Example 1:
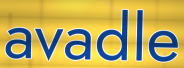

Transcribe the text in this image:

avadle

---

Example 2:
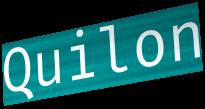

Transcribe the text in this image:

Quilon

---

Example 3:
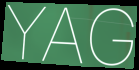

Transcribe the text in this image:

YAG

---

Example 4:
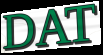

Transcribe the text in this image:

DAT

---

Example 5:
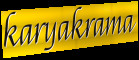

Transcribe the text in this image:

karyakrama